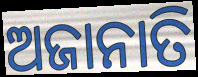
ଅଜାନାତି